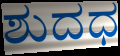
ಶುದಧ